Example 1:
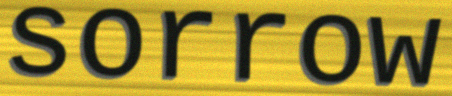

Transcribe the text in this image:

sorrow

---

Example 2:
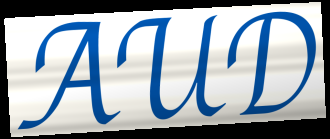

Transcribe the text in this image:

AUD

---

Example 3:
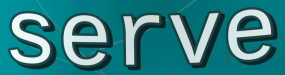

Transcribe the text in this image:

serve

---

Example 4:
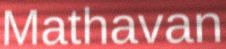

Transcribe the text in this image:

Mathavan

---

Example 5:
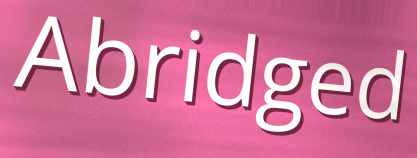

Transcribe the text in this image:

Abridged